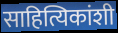
साहित्यिकांशी